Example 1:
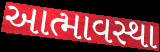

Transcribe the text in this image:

આત્માવસ્થા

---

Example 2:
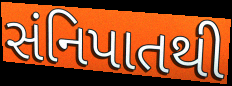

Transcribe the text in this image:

સંનિપાતથી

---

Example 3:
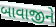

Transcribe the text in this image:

બાવાજીને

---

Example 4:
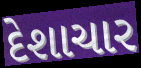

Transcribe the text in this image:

દેશાચાર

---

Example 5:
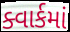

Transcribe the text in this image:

ક્વાર્કમાં